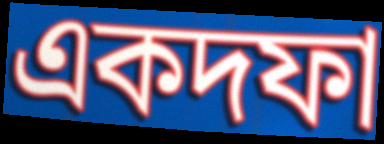
একদফা